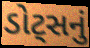
ડોટ્સનું